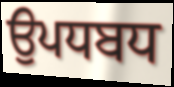
ਉਪਧਬਧ